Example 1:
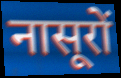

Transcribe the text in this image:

नासूरों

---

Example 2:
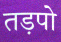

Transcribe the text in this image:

तड़पो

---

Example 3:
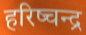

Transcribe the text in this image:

हरिष्चन्द्र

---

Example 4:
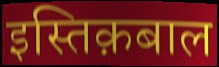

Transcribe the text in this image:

इस्तिक़बाल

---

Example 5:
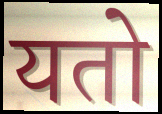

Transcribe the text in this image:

यतो